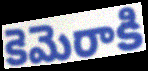
కెమెరాకి